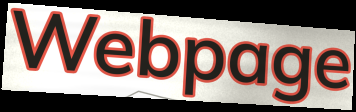
Webpage